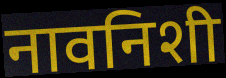
नावनिशी